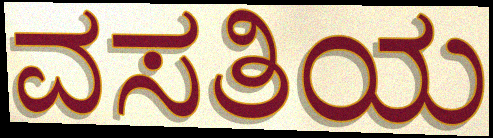
ವಸತಿಯ